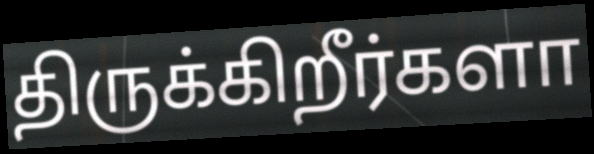
திருக்கிறீர்களா